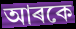
আৰকে